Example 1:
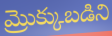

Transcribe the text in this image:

మ్రొక్కుబడిని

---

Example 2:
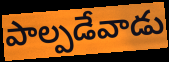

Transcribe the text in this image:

పాల్పడేవాడు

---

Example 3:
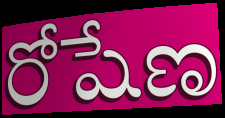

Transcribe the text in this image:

రోషేణ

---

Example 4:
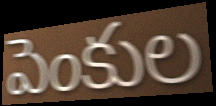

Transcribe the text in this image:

పెంకుల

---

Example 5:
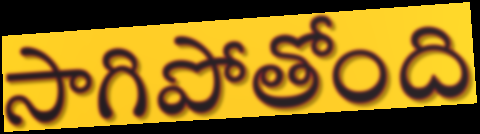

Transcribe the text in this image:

సాగిపోతోంది